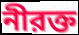
নীরক্ত